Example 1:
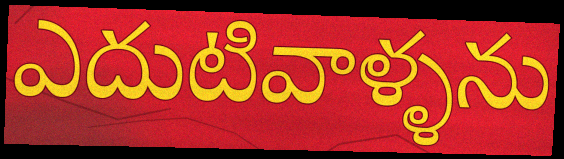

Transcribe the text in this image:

ఎదుటివాళ్ళను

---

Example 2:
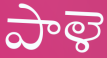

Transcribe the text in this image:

పాళె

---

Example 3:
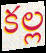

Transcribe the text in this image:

కల్ల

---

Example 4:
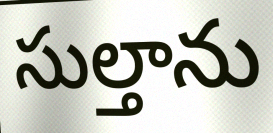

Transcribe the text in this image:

సుల్తాను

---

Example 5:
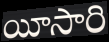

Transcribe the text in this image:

యీసారి